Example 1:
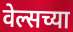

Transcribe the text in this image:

वेल्सच्या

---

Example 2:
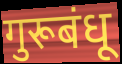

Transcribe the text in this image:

गुरूबंधू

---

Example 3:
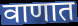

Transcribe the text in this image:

वाणात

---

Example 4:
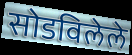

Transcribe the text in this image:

सोडविलेले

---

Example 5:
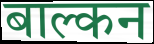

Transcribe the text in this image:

बाल्कन